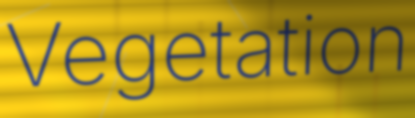
Vegetation